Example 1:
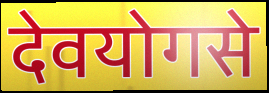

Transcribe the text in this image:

देवयोगसे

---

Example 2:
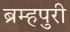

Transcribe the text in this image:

ब्रम्हपुरी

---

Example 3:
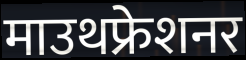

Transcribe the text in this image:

माउथफ्रेशनर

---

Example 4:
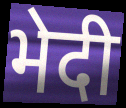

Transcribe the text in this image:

भेदी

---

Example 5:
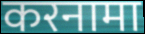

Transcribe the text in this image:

करनामा